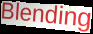
Blending